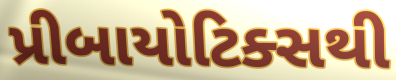
પ્રીબાયોટિક્સથી